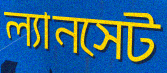
ল্যানসেট